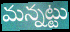
మన్నట్టు